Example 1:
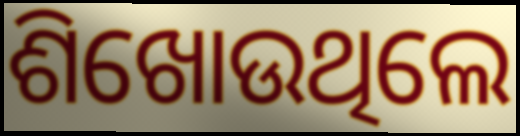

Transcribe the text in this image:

ଶିଖୋଉଥିଲେ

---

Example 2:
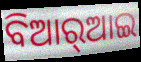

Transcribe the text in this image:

ବିଆର୍‌ଆଇ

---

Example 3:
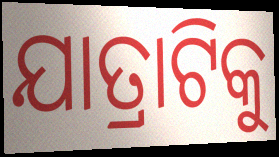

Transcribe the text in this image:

ଯାତ୍ରାଟିକୁ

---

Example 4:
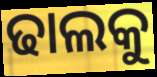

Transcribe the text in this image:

ଢାଲକୁ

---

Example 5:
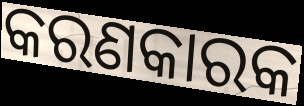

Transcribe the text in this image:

କରଣକାରକ